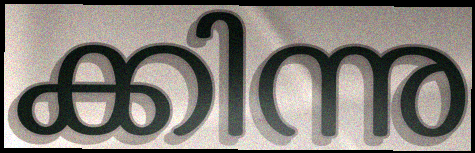
ക്കിന്നു